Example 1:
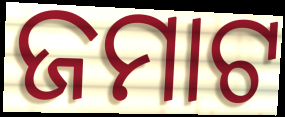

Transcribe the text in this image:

ଜମାଟ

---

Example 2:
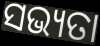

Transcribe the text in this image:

ସଭ୍ଯତା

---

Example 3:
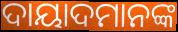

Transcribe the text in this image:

ଦାୟାଦମାନଙ୍କ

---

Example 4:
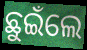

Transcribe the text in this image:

ଛୁଇଁଲେ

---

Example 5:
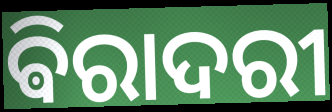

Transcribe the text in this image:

ଵିରାଦରୀ